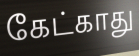
கேட்காது